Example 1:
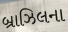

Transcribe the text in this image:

બ્રાઝિલના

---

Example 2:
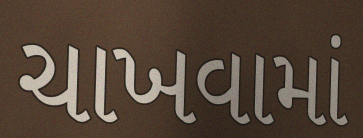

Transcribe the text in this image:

ચાખવામાં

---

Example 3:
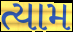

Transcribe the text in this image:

ત્યામ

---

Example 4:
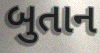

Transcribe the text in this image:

બુતાન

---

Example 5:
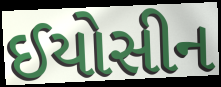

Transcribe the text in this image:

ઈયોસીન